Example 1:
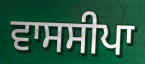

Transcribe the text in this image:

ਵਾਸਸੀਪਾ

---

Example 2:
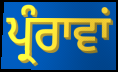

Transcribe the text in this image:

ਪ੍ਰੰਰਾਵਾਂ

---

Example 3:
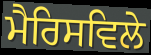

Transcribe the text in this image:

ਮੈਰਿਸਵਿਲੇ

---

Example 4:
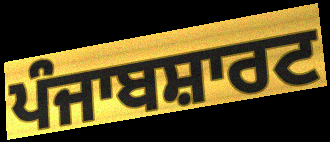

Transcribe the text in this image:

ਪੰਜਾਬਸ਼ਾਰਟ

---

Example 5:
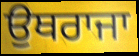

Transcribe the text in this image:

ਉਥਰਾਜਾ